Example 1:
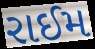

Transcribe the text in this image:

રાઈમ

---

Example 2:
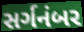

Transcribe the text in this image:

સર્ગનંબર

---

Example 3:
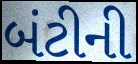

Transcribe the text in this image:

બંટીની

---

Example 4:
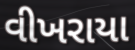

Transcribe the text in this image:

વીખરાયા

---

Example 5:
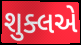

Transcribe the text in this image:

શુક્લએ